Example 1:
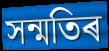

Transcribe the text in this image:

সন্মতিৰ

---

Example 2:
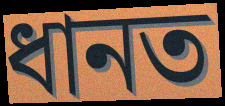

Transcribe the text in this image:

ধানত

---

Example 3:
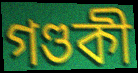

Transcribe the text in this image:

গণ্ডকী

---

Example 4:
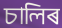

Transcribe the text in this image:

চালিৰ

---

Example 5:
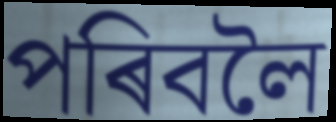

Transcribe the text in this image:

পৰিবলৈ